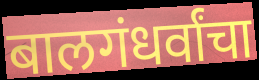
बालगंधर्वांचा